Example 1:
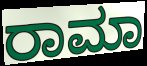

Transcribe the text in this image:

ರಾಮಾ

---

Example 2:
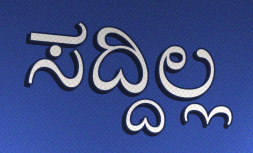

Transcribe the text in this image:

ಸದ್ದಿಲ್ಲ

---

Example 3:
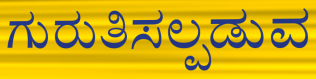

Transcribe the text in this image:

ಗುರುತಿಸಲ್ಪಡುವ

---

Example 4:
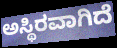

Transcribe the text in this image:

ಅಸ್ಥಿರವಾಗಿದೆ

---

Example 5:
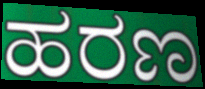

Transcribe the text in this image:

ಹರಣ